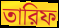
তারিফ